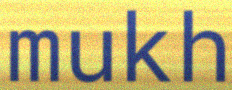
mukh